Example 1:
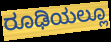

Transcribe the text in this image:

ರೂಢಿಯಲ್ಲೂ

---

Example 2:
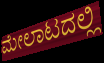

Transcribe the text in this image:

ಮೇಲಾಟದಲ್ಲಿ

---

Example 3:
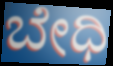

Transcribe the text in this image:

ಬೇಧಿ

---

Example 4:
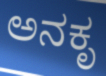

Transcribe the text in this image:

ಅನಕೃ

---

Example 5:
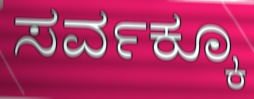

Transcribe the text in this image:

ಸರ್ವಕ್ಕೂ